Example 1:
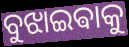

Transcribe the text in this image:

ବୁଝାଇଵାକୁ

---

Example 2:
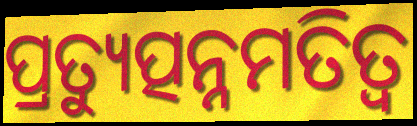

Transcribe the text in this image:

ପ୍ରତ୍ୟୁତ୍ପନ୍ନମତିତ୍ୱ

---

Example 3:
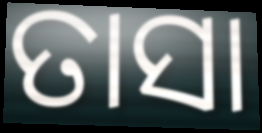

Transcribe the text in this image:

ତାସା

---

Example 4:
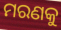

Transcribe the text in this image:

ମରଣକୁ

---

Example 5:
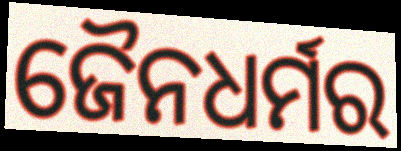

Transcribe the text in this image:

ଜୈନଧର୍ମର